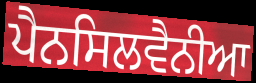
ਪੈਨਸਿਲਵੈਨੀਆ